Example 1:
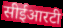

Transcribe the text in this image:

सीईआरटी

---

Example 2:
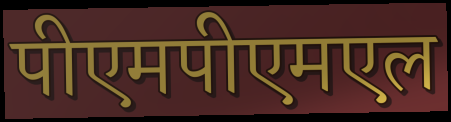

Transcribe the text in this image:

पीएमपीएमएल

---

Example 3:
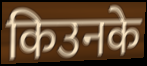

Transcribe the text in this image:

किउनके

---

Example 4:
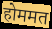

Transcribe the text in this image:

होममत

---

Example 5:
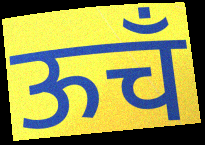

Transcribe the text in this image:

ऊचँ